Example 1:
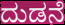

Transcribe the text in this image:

ದುಡನೆ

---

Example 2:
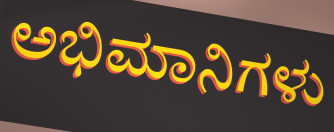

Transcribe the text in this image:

ಅಭಿಮಾನಿಗಳು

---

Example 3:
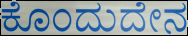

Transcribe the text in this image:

ಕೊಂದುದೇನ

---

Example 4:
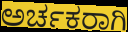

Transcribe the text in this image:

ಅರ್ಚಕರಾಗಿ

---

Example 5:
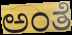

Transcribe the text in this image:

ಅಂತೆ